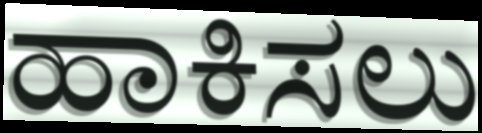
ಹಾಕಿಸಲು